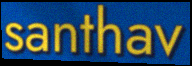
santhav